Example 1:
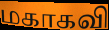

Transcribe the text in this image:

மகாகவி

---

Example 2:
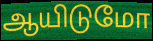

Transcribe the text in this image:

ஆயிடுமோ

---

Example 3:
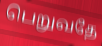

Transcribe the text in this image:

பெறுவதே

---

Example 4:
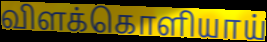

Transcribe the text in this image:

விளக்கொளியாய்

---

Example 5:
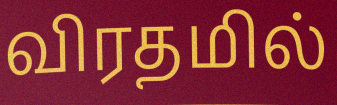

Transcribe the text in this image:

விரதமில்